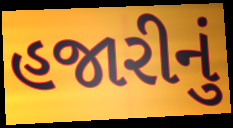
હજારીનું